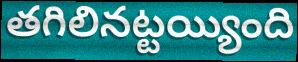
తగిలినట్టయ్యింది